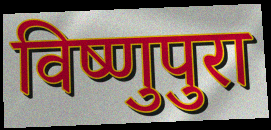
विष्णुपुरा